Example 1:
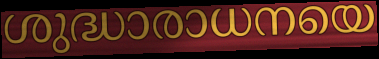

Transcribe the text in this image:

ശുദ്ധാരാധനയെ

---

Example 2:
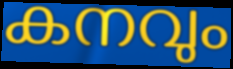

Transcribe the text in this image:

കനവും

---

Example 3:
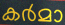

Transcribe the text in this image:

കർമാ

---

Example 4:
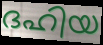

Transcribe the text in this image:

ദഹിയ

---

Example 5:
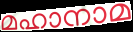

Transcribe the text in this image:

മഹാനാമ